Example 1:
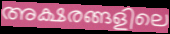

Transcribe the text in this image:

അക്ഷരങ്ങളിലെ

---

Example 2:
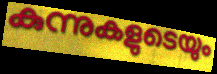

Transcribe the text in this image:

കുന്നുകളുടെയും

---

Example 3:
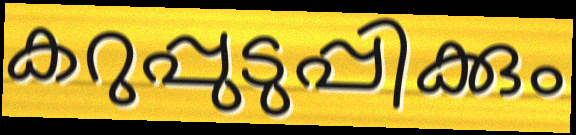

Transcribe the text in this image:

കറുപ്പുടുപ്പിക്കും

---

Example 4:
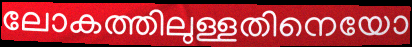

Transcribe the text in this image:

ലോകത്തിലുള്ളതിനെയോ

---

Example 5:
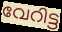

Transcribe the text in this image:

വേറിട്ട